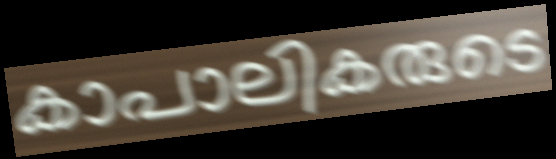
കാപാലികരുടെ